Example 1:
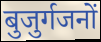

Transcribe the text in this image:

बुजुर्गजनों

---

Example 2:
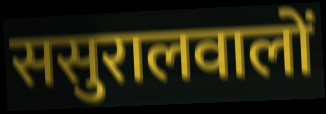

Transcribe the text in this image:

ससुरालवालों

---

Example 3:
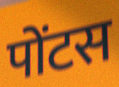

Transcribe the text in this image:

पोंटस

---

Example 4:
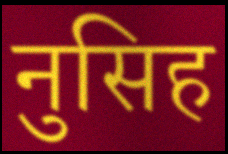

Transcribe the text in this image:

नुसिह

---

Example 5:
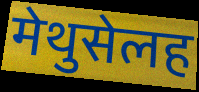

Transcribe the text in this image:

मेथुसेलह